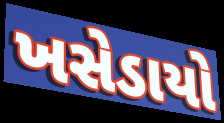
ખસેડાયો